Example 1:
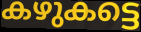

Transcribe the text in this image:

കഴുകട്ടെ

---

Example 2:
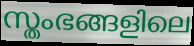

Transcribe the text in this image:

സ്തംഭങ്ങളിലെ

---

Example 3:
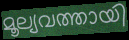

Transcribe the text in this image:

മൂല്യവത്തായി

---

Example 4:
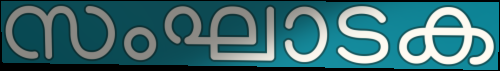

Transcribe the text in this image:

സംഘാടക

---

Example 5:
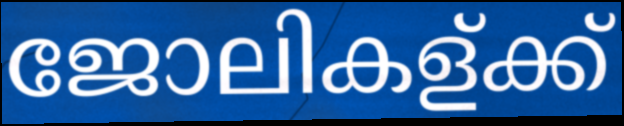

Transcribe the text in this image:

ജോലികള്ക്ക്